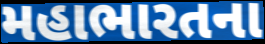
મહાભારતના